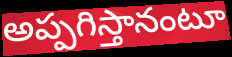
అప్పగిస్తానంటూ